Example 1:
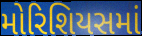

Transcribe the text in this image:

મોરિશિયસમાં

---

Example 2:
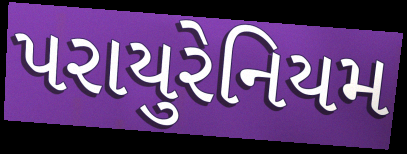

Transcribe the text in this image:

પરાયુરેનિયમ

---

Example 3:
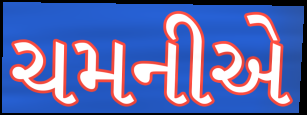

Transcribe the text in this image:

ચમનીએ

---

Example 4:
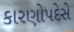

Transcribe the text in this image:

કારણોપદેસે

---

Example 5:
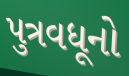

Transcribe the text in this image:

પુત્રવધૂનો